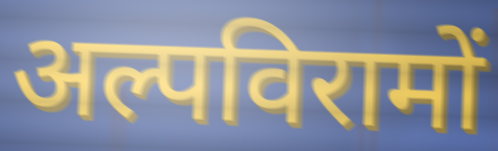
अल्पविरामों